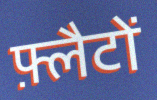
फ़्लैटों